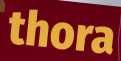
thora